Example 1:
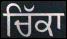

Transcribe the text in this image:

ਚਿੱਕਾ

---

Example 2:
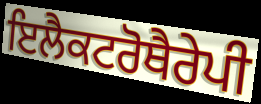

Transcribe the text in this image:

ਇਲੈਕਟਰੋਥੈਰੇਪੀ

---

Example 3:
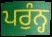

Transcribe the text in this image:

ਪਰੁੰਨ੍ਹ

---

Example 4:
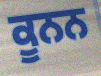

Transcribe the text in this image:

ਕੂਨਨ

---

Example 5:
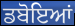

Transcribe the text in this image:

ਡਬੋਇਆਂ